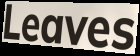
Leaves